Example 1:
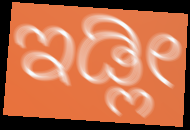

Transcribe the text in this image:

ಇಡ್ಲೀ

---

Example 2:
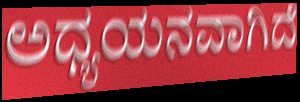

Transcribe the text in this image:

ಅಧ್ಯಯನವಾಗಿದೆ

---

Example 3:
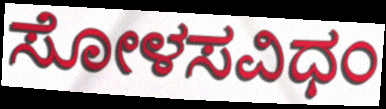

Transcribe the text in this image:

ಸೋಳಸವಿಧಂ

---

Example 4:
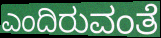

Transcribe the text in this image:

ಎಂದಿರುವಂತೆ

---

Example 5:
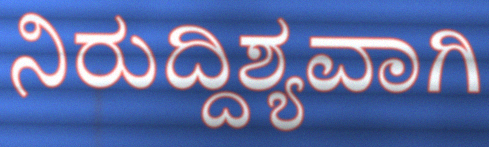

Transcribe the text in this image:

ನಿರುದ್ದಿಶ್ಯವಾಗಿ